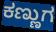
ಕಣ್ಣುಗ